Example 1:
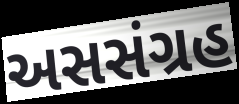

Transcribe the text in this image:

અસસંગ્રહ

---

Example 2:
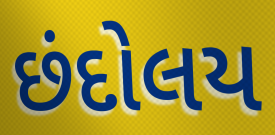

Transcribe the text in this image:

છંદોલય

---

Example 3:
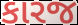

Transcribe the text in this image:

કારજ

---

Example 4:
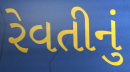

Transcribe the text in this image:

રેવતીનું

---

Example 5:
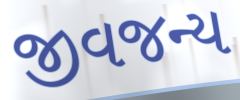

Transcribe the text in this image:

જીવજન્ય